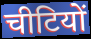
चीटियों